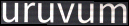
uruvum